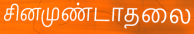
சினமுண்டாதலை